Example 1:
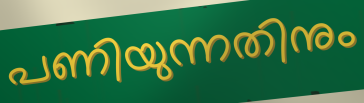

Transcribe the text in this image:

പണിയുന്നതിനും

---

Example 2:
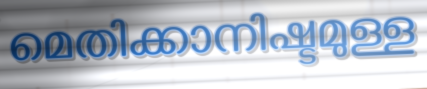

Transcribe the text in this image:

മെതിക്കാനിഷ്ടമുള്ള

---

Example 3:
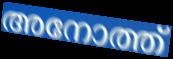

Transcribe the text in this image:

അനോത്ത്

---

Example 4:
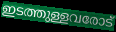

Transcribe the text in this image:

ഇടത്തുള്ളവരോട്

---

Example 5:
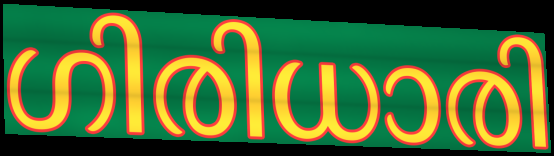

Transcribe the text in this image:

ഗിരിധാരി